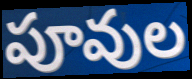
పూవుల